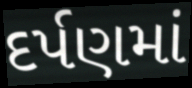
દર્પણમાં